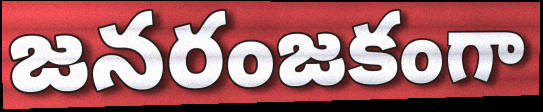
జనరంజకంగా